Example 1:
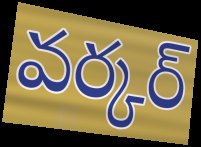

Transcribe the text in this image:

వర్కర్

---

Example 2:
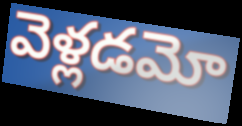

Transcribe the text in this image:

వెళ్లడమో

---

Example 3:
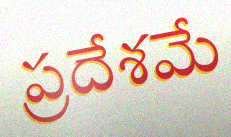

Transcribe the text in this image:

ప్రదేశమే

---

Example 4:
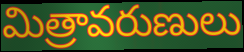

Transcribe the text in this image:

మిత్రావరుణులు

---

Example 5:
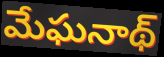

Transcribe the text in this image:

మేఘనాథ్